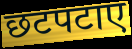
छटपटाए